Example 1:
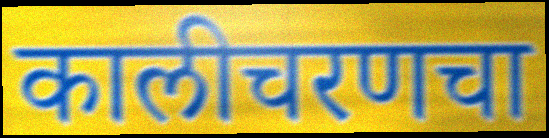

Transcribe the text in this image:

कालीचरणचा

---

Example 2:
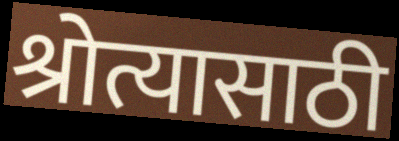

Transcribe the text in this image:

श्रोत्यासाठी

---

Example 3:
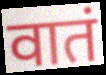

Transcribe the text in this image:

वातं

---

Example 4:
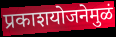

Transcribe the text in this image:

प्रकाशयोजनेमुळं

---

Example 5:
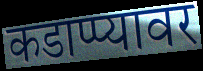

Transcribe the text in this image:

कडाप्प्यावर